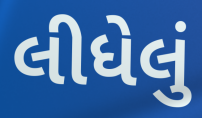
લીધેલું